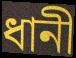
ধানী